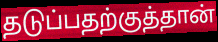
தடுப்பதற்குத்தான்